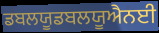
ਡਬਲਯੂਡਬਲਯੂਐਨਈ